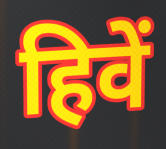
हिवें